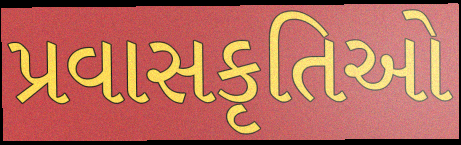
પ્રવાસકૃતિઓ